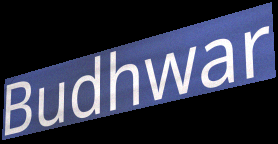
Budhwar